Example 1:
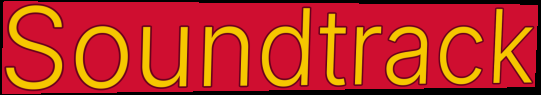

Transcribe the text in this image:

Soundtrack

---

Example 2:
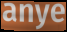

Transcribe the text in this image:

anye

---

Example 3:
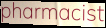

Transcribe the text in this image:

pharmacist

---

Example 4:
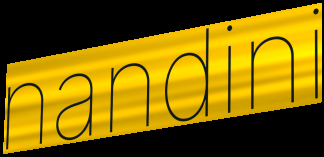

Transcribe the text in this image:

nandini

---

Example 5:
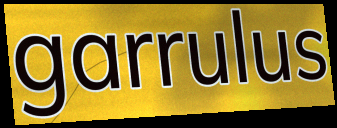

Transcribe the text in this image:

garrulus